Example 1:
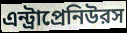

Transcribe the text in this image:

এন্ট্রাপ্রেনিউরস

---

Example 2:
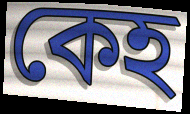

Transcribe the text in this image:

কেহ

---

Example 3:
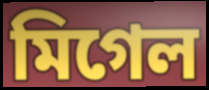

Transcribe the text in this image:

মিগেল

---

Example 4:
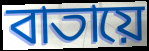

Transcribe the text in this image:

বাতায়ে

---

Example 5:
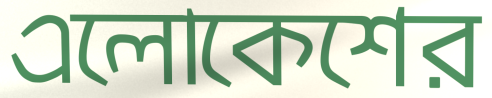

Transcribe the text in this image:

এলোকেশের